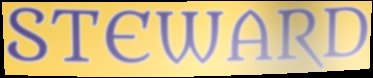
STEWARD